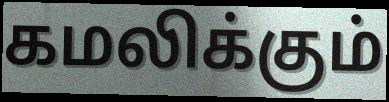
கமலிக்கும்